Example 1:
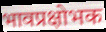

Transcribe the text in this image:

भावप्रक्षोभक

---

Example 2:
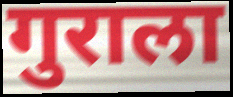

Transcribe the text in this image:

गुराला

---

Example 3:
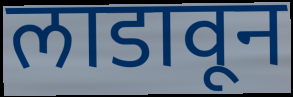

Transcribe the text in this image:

लाडावून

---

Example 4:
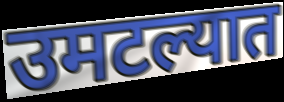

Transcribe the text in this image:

उमटल्यात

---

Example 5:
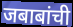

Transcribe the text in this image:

जबाबांची